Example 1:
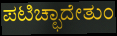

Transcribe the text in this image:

ಪಟಿಚ್ಛಾದೇತುಂ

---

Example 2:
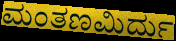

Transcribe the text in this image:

ಮಂತಣಮಿರ್ದು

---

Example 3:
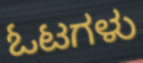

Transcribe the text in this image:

ಓಟಗಳು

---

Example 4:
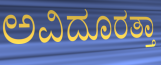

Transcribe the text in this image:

ಅವಿದೂರತ್ತಾ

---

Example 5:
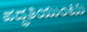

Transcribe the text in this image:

ಪದ್ಧತಿಯುಂಟು